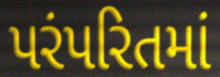
પરંપરિતમાં